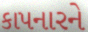
કાપનારને